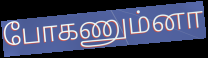
போகணும்னா